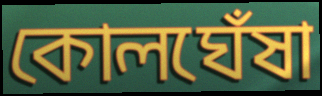
কোলঘেঁষা